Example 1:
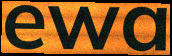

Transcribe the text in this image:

ewa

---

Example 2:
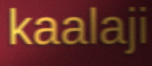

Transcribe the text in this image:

kaalaji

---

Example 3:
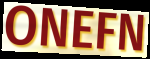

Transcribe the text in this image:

ONEFN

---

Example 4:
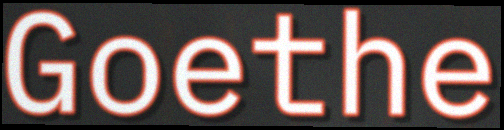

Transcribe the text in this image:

Goethe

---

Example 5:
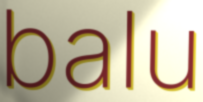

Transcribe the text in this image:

balu